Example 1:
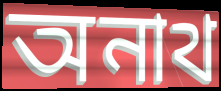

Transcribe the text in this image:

অনাথ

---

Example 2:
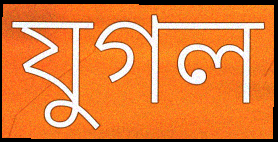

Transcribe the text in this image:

যুগল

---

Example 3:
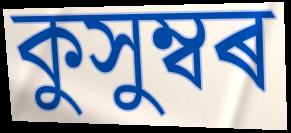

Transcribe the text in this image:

কুসুম্বৰ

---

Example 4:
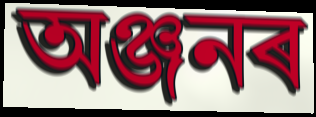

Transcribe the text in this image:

অঞ্জনৰ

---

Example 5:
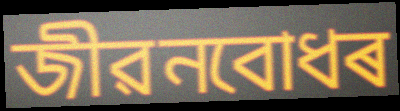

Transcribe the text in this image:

জীৱনবোধৰ